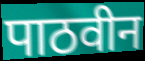
पाठवीन